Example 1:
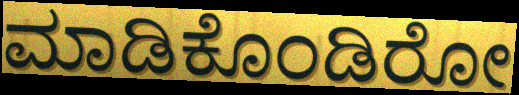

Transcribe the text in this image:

ಮಾಡಿಕೊಂಡಿರೋ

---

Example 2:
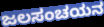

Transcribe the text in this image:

ಜಲಸಂಚಯನ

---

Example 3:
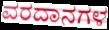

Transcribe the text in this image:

ವರದಾನಗಳ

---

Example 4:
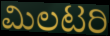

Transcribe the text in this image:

ಮಿಲಟರಿ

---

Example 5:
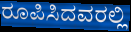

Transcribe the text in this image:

ರೂಪಿಸಿದವರಲ್ಲಿ